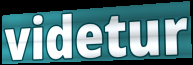
videtur